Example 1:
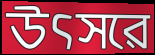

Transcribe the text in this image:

উৎসৱে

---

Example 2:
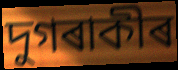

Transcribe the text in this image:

দুগৰাকীৰ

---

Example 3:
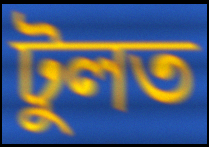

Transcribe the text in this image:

টুলত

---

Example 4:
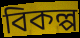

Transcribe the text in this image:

বিকল্প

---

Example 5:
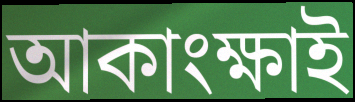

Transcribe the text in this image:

আকাংক্ষাই